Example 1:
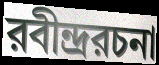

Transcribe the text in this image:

রবীন্দ্ররচনা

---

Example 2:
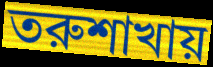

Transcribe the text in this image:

তরুশাখায়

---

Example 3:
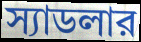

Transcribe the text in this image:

স্যাডলার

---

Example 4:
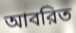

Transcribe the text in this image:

আবরিত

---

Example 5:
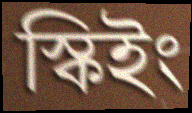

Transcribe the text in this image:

স্কিইং